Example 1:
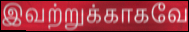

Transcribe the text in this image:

இவற்றுக்காகவே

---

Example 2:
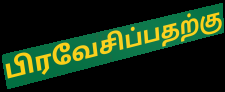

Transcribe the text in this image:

பிரவேசிப்பதற்கு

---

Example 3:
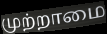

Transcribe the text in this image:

முற்றாமை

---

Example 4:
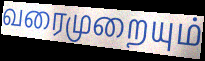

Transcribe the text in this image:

வரைமுறையும்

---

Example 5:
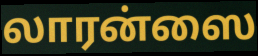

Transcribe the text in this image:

லாரன்ஸை